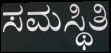
ಸಮಸ್ಥಿತಿ